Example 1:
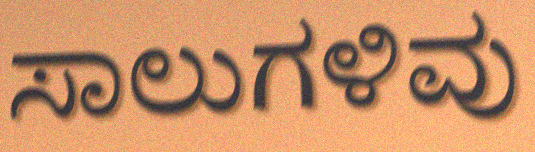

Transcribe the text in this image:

ಸಾಲುಗಳಿವು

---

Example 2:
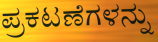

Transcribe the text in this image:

ಪ್ರಕಟಣೆಗಳನ್ನು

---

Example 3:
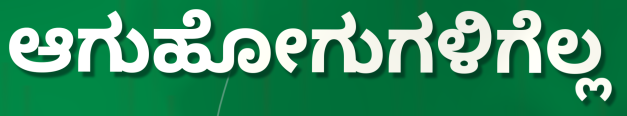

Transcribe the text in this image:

ಆಗುಹೋಗುಗಳಿಗೆಲ್ಲ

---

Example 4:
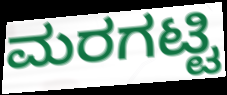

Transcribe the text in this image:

ಮರಗಟ್ಟಿ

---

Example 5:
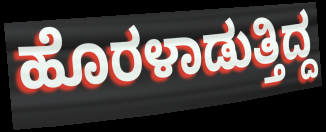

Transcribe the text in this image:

ಹೊರಳಾಡುತ್ತಿದ್ದ